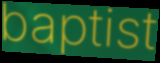
baptist